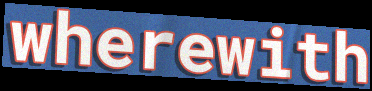
wherewith